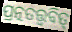
ପ୍ରତ୍ନତତ୍ତ୍ଵବିତ୍